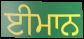
ਈਮਾਨ